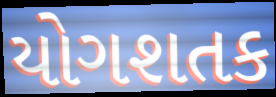
યોગશતક